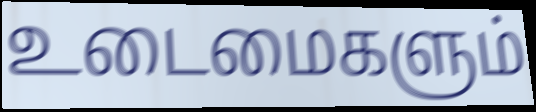
உடைமைகளும்